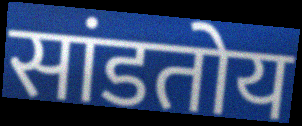
सांडतोय